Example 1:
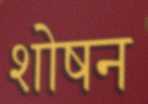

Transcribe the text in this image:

शोषन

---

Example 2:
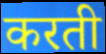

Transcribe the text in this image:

करती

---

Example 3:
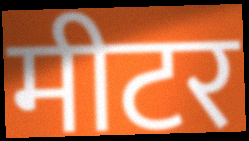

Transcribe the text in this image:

मीटर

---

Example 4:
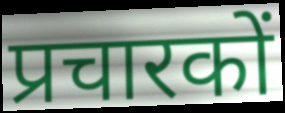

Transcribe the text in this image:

प्रचारकों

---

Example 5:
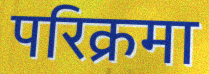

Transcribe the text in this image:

परिक्रमा